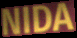
NIDA